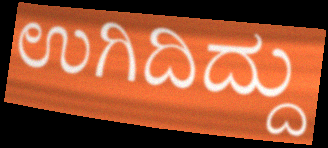
ಉಗಿದಿದ್ದು